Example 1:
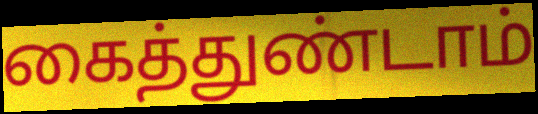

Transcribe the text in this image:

கைத்துண்டாம்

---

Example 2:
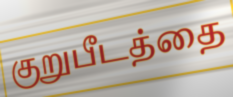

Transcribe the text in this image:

குறுபீடத்தை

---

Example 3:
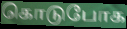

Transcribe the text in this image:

கொடுபோக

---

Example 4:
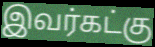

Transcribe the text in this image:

இவர்கட்கு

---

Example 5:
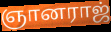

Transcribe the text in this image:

ஞானராஜ்